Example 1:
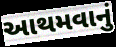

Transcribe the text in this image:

આથમવાનું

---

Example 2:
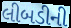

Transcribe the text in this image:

લીબડીની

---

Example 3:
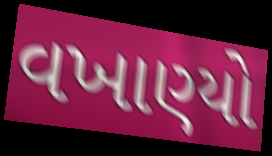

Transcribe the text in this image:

વખાણ્યો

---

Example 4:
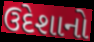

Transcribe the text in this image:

ઉદેશાનો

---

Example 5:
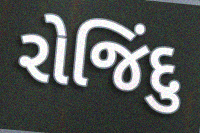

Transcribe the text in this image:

રોજિંદુ